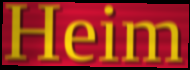
Heim